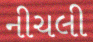
નીચલી